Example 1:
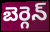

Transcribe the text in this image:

బెర్గెన్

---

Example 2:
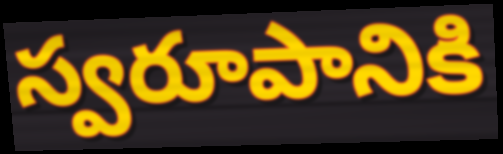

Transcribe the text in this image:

స్వరూపానికి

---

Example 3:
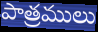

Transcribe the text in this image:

పాత్రములు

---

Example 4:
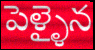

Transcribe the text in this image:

పెళ్ళైన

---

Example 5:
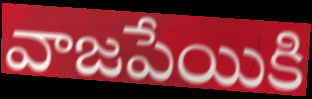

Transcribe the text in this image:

వాజపేయికి